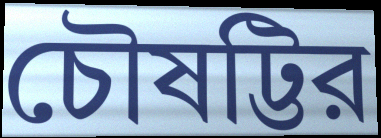
চৌষট্টির